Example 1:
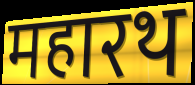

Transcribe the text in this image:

महारथ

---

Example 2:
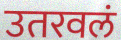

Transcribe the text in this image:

उतरवलं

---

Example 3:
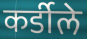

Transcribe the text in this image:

कर्डीले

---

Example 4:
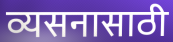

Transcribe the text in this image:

व्यसनासाठी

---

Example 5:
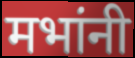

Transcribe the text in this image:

मभांनी